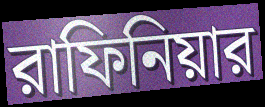
রাফিনিয়ার